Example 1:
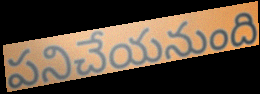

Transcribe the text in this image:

పనిచేయనుంది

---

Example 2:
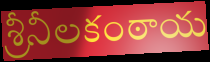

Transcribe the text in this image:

శ్రీనీలకంఠాయ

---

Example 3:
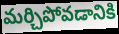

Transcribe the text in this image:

మర్చిపోవడానికి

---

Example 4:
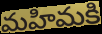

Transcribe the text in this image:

మహిమకి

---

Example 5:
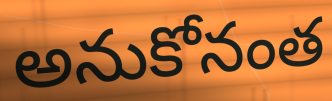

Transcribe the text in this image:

అనుకోనంత